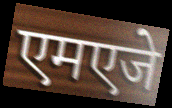
एमएजे